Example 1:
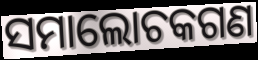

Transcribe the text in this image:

ସମାଲୋଚକଗଣ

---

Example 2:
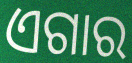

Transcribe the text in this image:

ଏଗାର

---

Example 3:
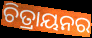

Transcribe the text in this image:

ଚିତ୍ରାୟନର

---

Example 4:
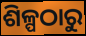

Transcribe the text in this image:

ଶିଳ୍ପଠାରୁ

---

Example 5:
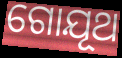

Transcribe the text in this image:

ଗୋଯୂଥ